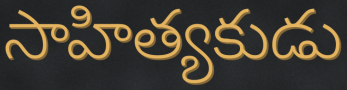
సాహిత్యకుడు